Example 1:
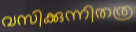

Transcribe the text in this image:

വസിക്കുന്നിതത്ര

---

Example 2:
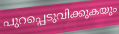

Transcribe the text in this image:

പുറപ്പെടുവിക്കുകയും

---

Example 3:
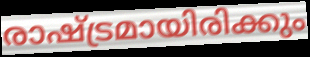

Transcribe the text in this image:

രാഷ്ട്രമായിരിക്കും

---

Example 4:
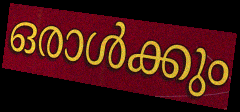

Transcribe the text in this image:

ഒരാൾക്കും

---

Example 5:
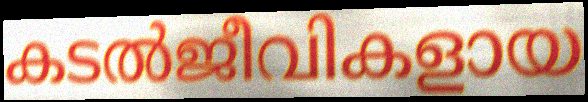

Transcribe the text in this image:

കടൽജീവികളായ